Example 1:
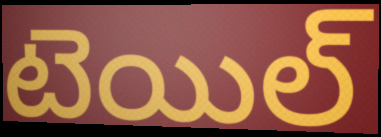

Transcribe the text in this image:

టెయిల్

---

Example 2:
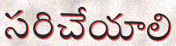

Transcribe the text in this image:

సరిచేయాలి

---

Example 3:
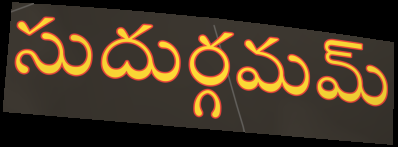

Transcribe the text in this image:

సుదుర్గమమ్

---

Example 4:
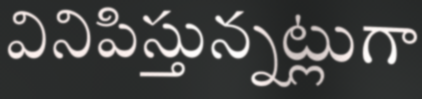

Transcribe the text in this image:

వినిపిస్తున్నట్లుగా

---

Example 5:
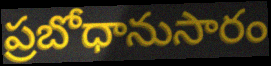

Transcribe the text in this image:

ప్రబోధానుసారం